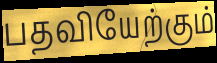
பதவியேற்கும்